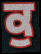
ਕੁ